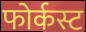
फोर्कस्ट